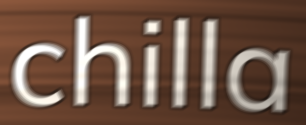
chilla